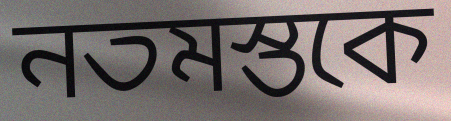
নতমস্তকে